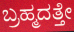
ಬ್ರಹ್ಮದತ್ತೇ